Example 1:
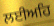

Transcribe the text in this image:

ਲਈਅਹਿ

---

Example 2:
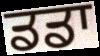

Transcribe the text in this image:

ਡਡਾ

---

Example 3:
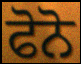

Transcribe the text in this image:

ਫੋਨੋ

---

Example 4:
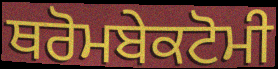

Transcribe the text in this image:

ਥਰੋਮਬੇਕਟੋਮੀ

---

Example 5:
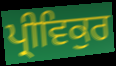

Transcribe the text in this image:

ਪ੍ਰੀਵਿਕੁਰ